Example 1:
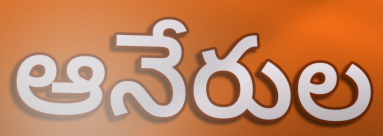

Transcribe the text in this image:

ఆనేరుల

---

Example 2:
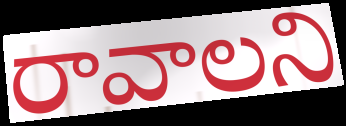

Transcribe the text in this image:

రావాలని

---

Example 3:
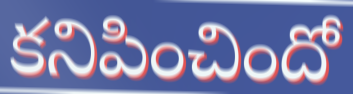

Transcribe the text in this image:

కనిపించిందో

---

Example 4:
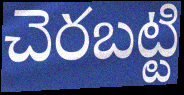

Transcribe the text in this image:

చెరబట్టి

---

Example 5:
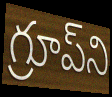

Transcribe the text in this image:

గ్రూప్‌ని